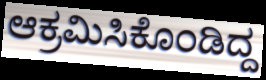
ಆಕ್ರಮಿಸಿಕೊಂಡಿದ್ದ